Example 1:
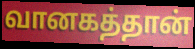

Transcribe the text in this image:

வானகத்தான்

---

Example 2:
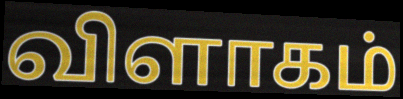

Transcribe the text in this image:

விளாகம்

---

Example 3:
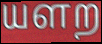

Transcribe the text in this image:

யளற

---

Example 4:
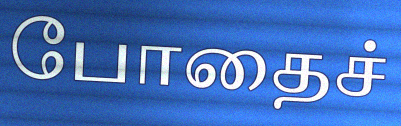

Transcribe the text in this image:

போதைச்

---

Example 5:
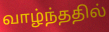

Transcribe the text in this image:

வாழ்ந்ததில்